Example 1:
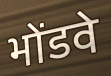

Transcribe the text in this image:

भोंडवे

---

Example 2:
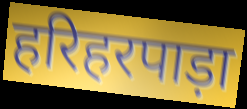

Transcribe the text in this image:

हरिहरपाड़ा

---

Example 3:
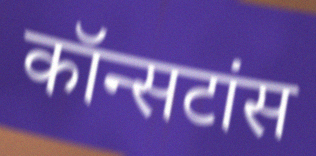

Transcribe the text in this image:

कॉन्सटांस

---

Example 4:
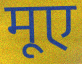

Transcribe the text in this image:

मूए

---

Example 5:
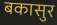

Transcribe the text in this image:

बकासुर